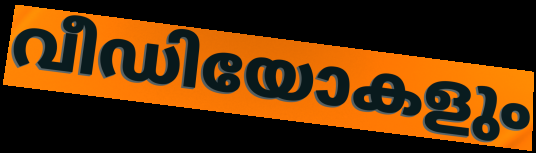
വീഡിയോകളും